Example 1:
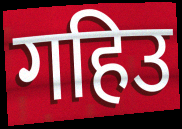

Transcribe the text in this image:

गहिउ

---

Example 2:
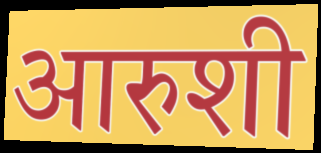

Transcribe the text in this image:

आरुशी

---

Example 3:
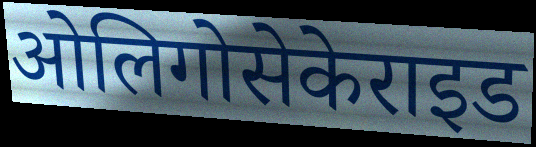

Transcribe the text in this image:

ओलिगोसेकेराइड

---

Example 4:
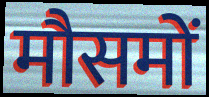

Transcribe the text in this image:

मौसमों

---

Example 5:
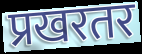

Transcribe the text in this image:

प्रखरतर